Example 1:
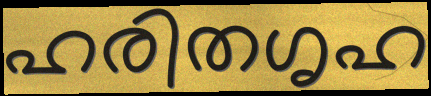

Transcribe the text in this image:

ഹരിതഗൃഹ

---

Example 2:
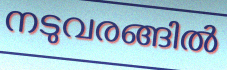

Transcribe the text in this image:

നടുവരങ്ങിൽ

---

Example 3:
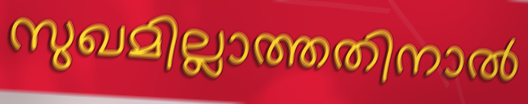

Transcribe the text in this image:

സുഖമില്ലാത്തതിനാൽ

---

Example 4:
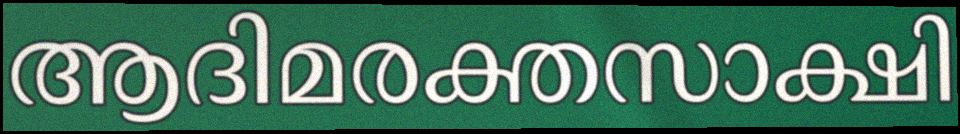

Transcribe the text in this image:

ആദിമരക്തസാക്ഷി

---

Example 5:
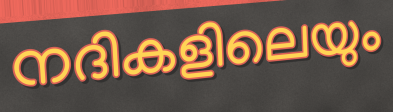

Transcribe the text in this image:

നദികളിലെയും